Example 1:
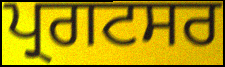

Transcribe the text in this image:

ਪ੍ਰਗਟਸਰ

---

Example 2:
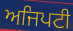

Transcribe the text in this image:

ਅਜਿਪਟੀ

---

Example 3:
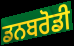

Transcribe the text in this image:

ਡਨਬਰੋਡੀ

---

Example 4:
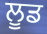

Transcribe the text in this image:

ਲੂਡ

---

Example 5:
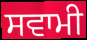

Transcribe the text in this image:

ਸਵਾਮੀ